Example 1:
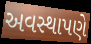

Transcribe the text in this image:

અવસ્થાપણે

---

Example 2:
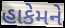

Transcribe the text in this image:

હાકેમને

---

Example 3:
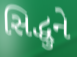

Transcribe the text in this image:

સિદ્ધુને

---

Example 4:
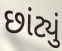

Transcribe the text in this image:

છાંટ્યું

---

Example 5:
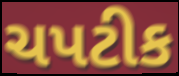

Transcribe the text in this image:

ચપટીક